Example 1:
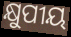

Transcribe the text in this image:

କ୍ଷୁପୀୟ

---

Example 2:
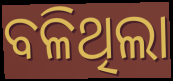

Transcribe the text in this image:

ବଳିଥିଲା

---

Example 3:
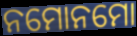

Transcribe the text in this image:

ନମୋନମୋ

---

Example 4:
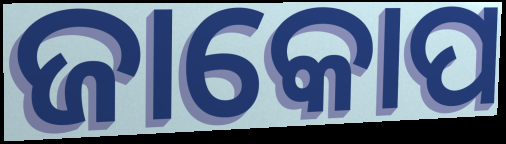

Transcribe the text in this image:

ଜାକୋପ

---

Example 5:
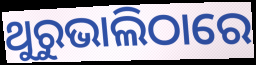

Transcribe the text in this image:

ଥୁରୁଭାଲିଠାରେ